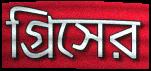
গ্রিসের